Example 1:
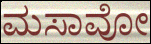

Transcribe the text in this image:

ಮಸಾವೋ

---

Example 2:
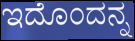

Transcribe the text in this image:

ಇದೊಂದನ್ನ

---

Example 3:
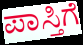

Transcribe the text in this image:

ಪಾಸ್ತಿಗೆ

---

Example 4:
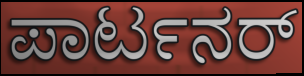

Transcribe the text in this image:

ಪಾರ್ಟನರ್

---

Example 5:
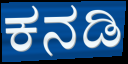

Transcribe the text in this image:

ಕನಡಿ